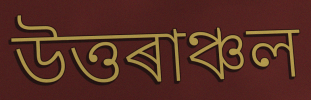
উত্তৰাঞ্চল